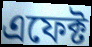
এফেক্ট